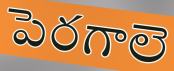
పెరగాలె